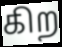
கிற